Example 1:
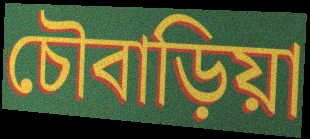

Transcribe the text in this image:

চৌবাড়িয়া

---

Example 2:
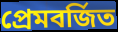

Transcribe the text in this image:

প্রেমবর্জিত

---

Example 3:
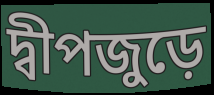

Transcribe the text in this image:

দ্বীপজুড়ে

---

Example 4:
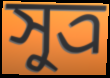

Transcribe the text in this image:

সুত্র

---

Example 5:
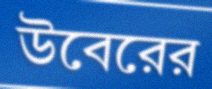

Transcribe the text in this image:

উবেরের